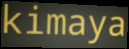
kimaya